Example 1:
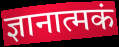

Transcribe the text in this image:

ज्ञानात्मकं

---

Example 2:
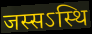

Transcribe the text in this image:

जस्सऽस्थि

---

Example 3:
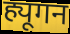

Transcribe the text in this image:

ह्यूगन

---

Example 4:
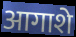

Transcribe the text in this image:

आगाशे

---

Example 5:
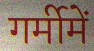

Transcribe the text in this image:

गर्मीमें